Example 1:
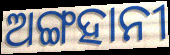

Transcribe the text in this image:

ଅଙ୍ଗହାନୀ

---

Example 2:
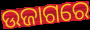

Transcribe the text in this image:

ଉଜାଗରେ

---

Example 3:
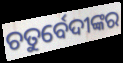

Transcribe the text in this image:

ଚତୁର୍ବେଦୀଙ୍କର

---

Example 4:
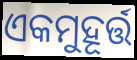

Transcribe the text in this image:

ଏକମୁହୂର୍ତ୍ତ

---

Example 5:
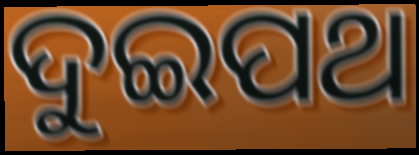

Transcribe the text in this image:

ଦୁଇପଥ